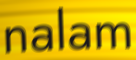
nalam